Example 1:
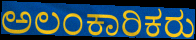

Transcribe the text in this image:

ಅಲಂಕಾರಿಕರು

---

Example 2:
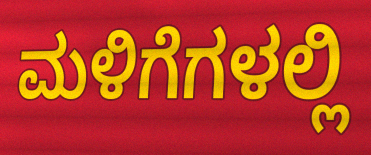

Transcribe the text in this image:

ಮಳಿಗೆಗಳಲ್ಲಿ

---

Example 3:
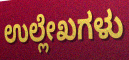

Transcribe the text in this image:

ಉಲ್ಲೇಖಗಳು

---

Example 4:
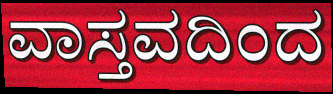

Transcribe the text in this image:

ವಾಸ್ತವದಿಂದ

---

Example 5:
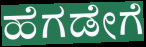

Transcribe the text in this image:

ಹೆಗಡೇಗೆ